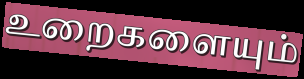
உறைகளையும்